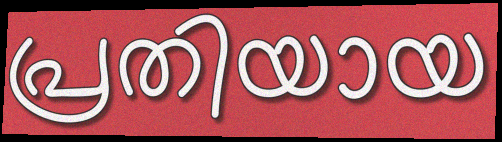
പ്രതിയായ